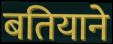
बतियाने